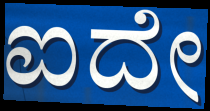
ಐದೇ